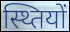
स्थ्तियों